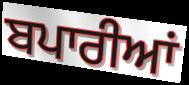
ਬਪਾਰੀਆਂ